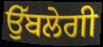
ਉੱਬਲੇਗੀ